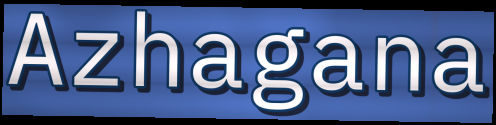
Azhagana